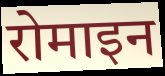
रोमाइन